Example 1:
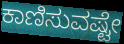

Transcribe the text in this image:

ಕಾಣಿಸುವಷ್ಟೇ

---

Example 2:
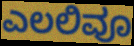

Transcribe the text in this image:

ಎಲಲಿವೂ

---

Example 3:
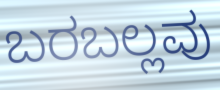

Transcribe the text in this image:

ಬರಬಲ್ಲವು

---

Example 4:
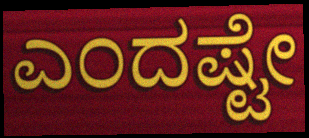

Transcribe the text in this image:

ಎಂದಷ್ಟೇ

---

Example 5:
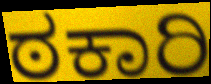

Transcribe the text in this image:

ಠಕಾರಿ